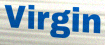
Virgin